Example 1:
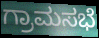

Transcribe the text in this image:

ಗ್ರಾಮಸಭೆ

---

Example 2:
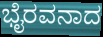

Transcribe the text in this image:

ಭೈರವನಾದ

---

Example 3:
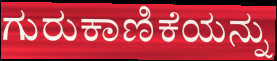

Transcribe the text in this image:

ಗುರುಕಾಣಿಕೆಯನ್ನು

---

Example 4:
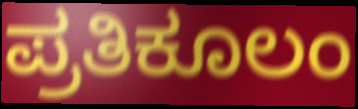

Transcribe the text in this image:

ಪ್ರತಿಕೂಲಂ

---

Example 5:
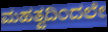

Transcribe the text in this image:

ಮಹತ್ವದಿಂದಲೇ